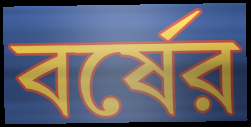
বর্ষের